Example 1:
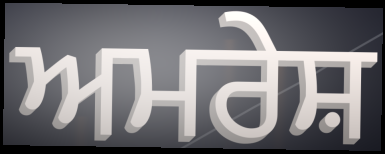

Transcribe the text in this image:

ਅਮਰੇਸ਼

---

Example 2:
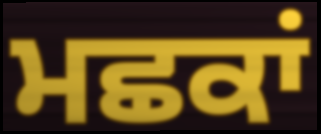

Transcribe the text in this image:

ਮਛਕਾਂ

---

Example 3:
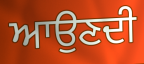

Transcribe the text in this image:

ਆਉਣਦੀ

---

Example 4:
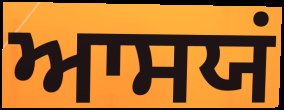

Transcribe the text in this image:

ਆਸਯਂ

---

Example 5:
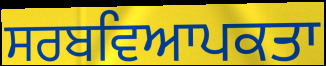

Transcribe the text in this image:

ਸਰਬਵਿਆਪਕਤਾ